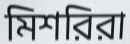
মিশরিরা